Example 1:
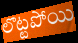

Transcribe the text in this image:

లొట్టపోయి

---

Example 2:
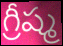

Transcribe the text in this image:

గ్రీష్మ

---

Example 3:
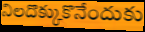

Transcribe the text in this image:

నిలదొక్కుకొనేందుకు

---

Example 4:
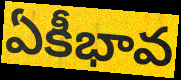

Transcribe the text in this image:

ఏకీభావ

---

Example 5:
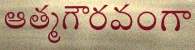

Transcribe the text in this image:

ఆత్మగౌరవంగా